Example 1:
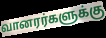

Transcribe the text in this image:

வானரர்களுக்கு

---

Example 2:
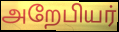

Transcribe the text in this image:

அறேபியர்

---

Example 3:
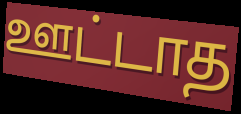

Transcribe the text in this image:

ஊட்டாத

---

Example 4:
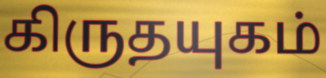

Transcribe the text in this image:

கிருதயுகம்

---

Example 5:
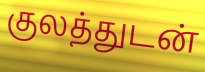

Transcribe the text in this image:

குலத்துடன்